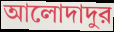
আলোদাদুর